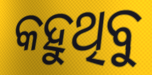
କହୁଥିବୁ